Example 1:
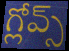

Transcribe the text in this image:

గ్లోవ్స్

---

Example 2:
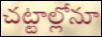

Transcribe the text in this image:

చట్టాల్లోనూ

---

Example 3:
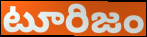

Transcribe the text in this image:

టూరిజం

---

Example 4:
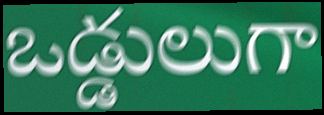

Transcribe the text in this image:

ఒడ్డులుగా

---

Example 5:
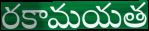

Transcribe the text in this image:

రకామయత